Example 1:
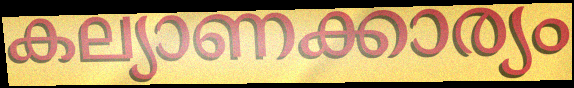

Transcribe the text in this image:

കല്യാണക്കാര്യം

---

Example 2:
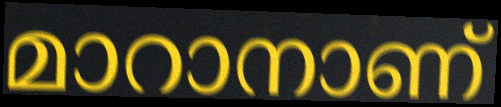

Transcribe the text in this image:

മാറാനാണ്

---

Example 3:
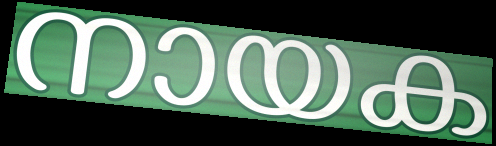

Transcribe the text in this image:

നായക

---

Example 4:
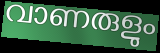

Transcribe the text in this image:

വാണരുളും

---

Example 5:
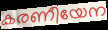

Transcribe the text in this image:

കരണീയേന